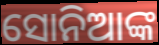
ସୋନିଆଙ୍କ